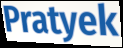
Pratyek